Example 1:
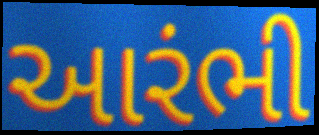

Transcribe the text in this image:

આરંભી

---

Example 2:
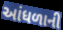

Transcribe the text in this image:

આંધળાની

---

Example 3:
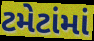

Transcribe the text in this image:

ટમેટાંમાં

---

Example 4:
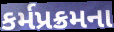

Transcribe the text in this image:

કર્મપ્રક્રમના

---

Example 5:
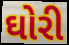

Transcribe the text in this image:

ઘોરી